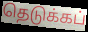
தெடுக்கப்